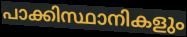
പാക്കിസ്ഥാനികളും